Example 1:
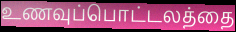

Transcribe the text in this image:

உணவுப்பொட்டலத்தை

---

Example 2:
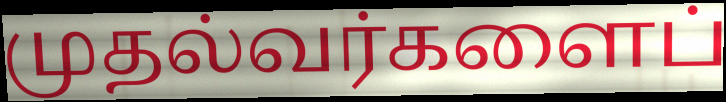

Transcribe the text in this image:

முதல்வர்களைப்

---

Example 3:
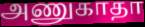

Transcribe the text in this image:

அணுகாதா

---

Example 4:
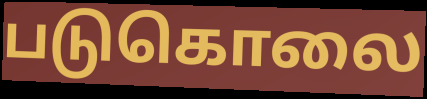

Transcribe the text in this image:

படுகொலை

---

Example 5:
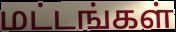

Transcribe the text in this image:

மட்டங்கள்